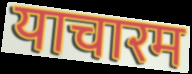
याचारम